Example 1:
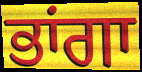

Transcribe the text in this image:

ਭਾਂਗਾ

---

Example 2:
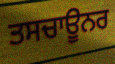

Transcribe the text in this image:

ਤਸਚਾਊਨਰ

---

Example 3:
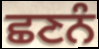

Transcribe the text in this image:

ਛਣਨੰ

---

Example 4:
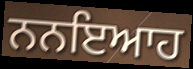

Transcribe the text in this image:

ਨਨਇਆਹ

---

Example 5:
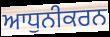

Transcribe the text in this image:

ਆਧੁਨੀਕਰਨ